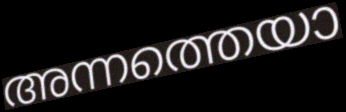
അന്നത്തെയാ